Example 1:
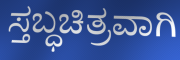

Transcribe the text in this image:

ಸ್ತಬ್ಧಚಿತ್ರವಾಗಿ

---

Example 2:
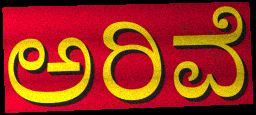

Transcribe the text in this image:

ಅರಿವೆ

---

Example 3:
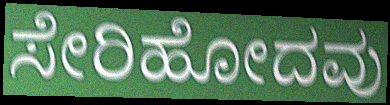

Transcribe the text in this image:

ಸೇರಿಹೋದವು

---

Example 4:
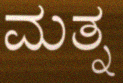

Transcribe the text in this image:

ಮತ್ನ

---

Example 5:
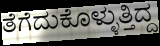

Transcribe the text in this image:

ತೆಗೆದುಕೊಳ್ಳುತ್ತಿದ್ದ